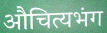
औचित्यभंग